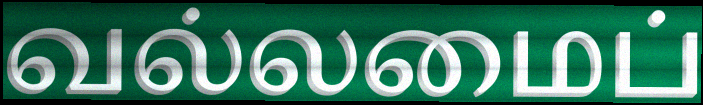
வல்லமைப்